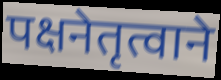
पक्षनेतृत्वाने